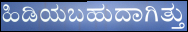
ಹಿಡಿಯಬಹುದಾಗಿತ್ತು